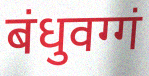
बंधुवग्गं